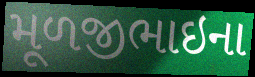
મૂળજીભાઇના